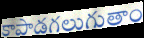
కాపాడగలుగుతాం